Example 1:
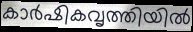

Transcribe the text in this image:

കാർഷികവൃത്തിയിൽ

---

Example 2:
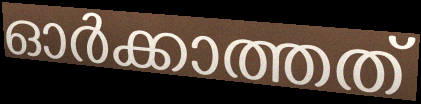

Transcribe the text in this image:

ഓർക്കാത്തത്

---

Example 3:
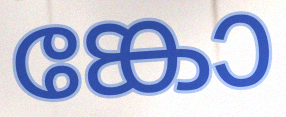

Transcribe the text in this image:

ങ്കോ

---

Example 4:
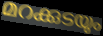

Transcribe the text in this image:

മറക്കുടയും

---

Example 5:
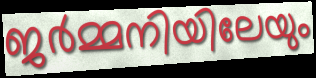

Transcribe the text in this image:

ജർമ്മനിയിലേയും